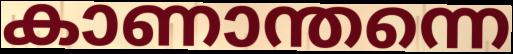
കാണാന്തന്നെ